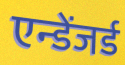
एन्डेंजर्ड